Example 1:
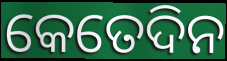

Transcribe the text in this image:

କେତେଦିନ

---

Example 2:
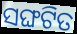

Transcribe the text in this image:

ସଙ୍ଘଟିତ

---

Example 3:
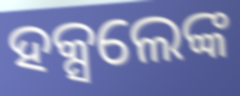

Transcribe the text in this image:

ହକ୍ସଲେଙ୍କ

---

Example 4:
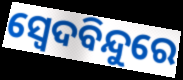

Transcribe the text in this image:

ସ୍ୱେଦବିନ୍ଦୁରେ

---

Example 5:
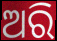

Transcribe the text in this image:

ଅରି